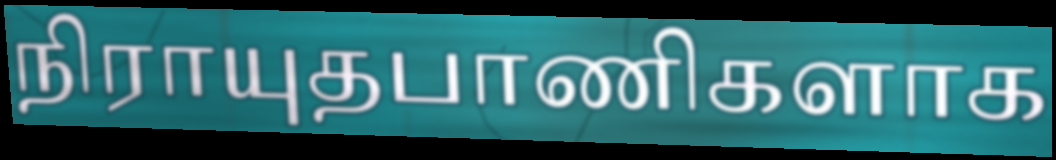
நிராயுதபாணிகளாக